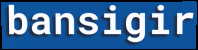
bansigir